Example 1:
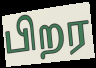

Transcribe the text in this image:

பிறர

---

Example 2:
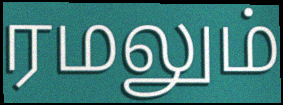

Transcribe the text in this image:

ரமலும்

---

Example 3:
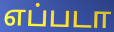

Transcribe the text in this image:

எப்படா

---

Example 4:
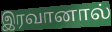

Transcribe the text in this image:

இரவானால்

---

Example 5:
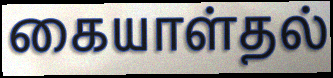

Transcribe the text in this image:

கையாள்தல்